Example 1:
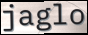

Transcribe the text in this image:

jaglo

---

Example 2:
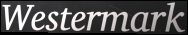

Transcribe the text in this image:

Westermark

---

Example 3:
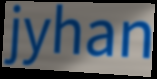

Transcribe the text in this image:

jyhan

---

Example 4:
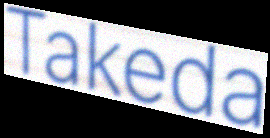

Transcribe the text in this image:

Takeda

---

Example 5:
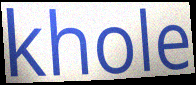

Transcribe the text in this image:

khole